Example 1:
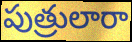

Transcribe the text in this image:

పుత్రులారా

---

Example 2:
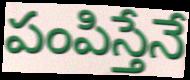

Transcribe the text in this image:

పంపిస్తేనే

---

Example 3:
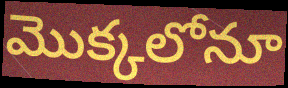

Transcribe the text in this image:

మొక్కలోనూ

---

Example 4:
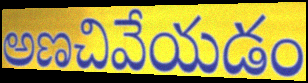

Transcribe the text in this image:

అణచివేయడం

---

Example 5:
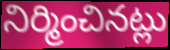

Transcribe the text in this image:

నిర్మించినట్లు